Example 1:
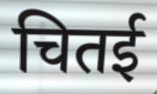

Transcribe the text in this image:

चितई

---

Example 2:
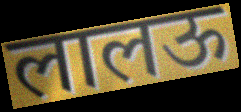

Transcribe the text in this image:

लालऊ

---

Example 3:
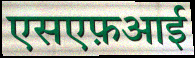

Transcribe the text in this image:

एसएफ़आई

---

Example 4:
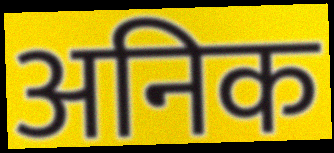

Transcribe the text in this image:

अनिक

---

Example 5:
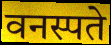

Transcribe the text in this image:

वनस्पते